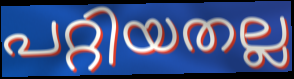
പറ്റിയതല്ല